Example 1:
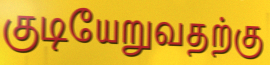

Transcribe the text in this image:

குடியேறுவதற்கு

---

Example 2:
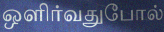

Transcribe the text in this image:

ஒளிர்வதுபோல்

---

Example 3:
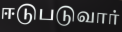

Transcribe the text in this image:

ஈடுபடுவார்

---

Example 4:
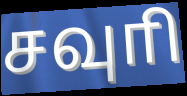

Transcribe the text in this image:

சவுரி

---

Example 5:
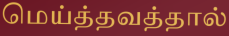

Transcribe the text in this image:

மெய்த்தவத்தால்